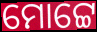
ମୋଟ୍ଟେ